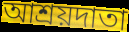
আশ্রয়দাতা